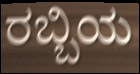
ರಬ್ಬಿಯ